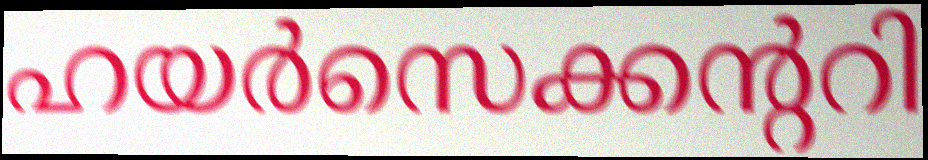
ഹയർസെക്കന്ററി